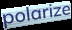
polarize